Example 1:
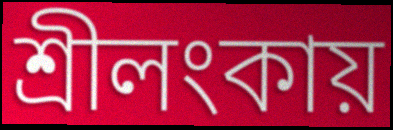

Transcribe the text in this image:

শ্রীলংকায়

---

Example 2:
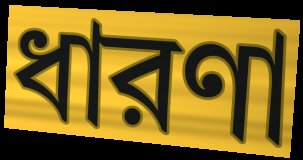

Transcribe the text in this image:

ধারণা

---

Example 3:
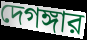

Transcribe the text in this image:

দেগঙ্গার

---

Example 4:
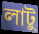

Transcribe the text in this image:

লাটু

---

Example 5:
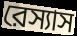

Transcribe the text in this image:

রেস্যাস